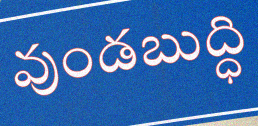
వుండబుద్ధి